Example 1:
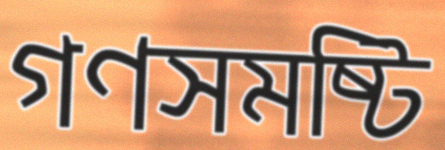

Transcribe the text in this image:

গণসমষ্টি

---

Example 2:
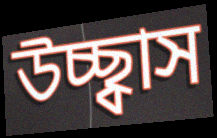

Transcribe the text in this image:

উচ্ছ্বাস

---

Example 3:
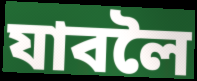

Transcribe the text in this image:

যাবলৈ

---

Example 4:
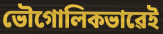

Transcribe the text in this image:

ভৌগোলিকভাৱেই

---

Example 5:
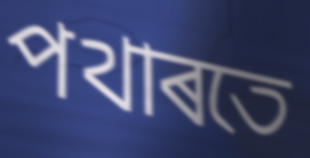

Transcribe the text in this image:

পথাৰতে